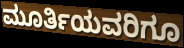
ಮೂರ್ತಿಯವರಿಗೂ